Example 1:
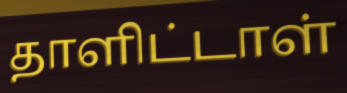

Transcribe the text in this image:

தாளிட்டாள்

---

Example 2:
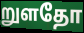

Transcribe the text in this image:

றுளதோ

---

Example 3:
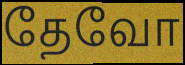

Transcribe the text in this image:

தேவோ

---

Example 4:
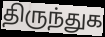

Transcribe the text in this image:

திருந்துக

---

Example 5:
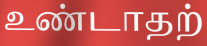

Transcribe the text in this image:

உண்டாதற்